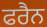
ਫਰੈਨ